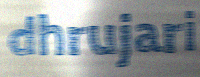
dhrujari